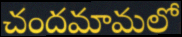
చందమామలో